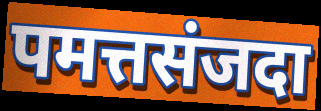
पमत्तसंजदा